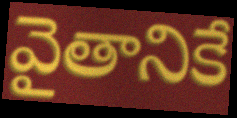
వైతానికే